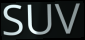
SUV